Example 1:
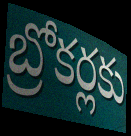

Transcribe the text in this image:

బ్రోకర్లకు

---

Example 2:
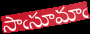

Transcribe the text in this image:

సాఁసూమాఁ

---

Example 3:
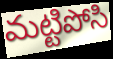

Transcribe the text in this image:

మట్టిపోసి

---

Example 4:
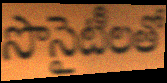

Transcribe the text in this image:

సొసైటీలతో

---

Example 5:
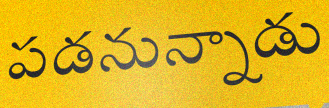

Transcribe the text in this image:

పడనున్నాడు